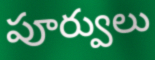
పూర్వులు